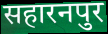
सहारनपुर